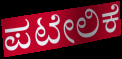
ಪಟೇಲಿಕೆ